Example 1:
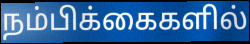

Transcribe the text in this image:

நம்பிக்கைகளில்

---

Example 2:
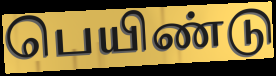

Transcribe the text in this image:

பெயிண்டு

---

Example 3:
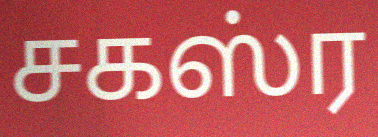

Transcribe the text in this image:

சகஸ்ர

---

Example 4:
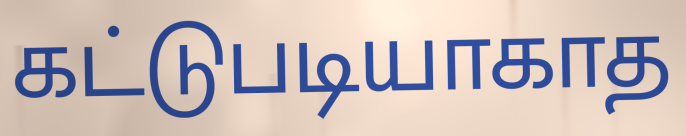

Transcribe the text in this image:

கட்டுபடியாகாத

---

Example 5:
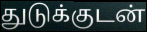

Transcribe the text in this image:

துடுக்குடன்